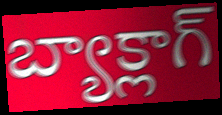
బ్యాక్లాగ్